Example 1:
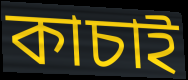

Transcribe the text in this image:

কাচাই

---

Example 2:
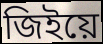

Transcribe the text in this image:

জিইয়ে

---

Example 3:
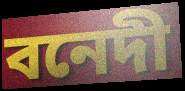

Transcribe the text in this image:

বনেদী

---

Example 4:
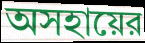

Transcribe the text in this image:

অসহায়ের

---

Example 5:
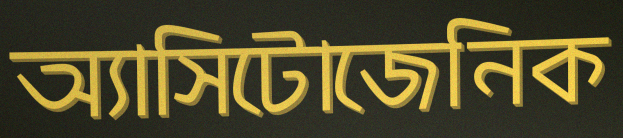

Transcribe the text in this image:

অ্যাসিটোজেনিক